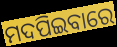
ମଦପିଇବାରେ